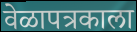
वेळापत्रकाला